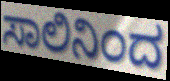
ಸಾಲಿನಿಂದ